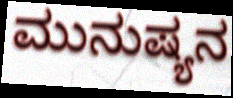
ಮುನುಷ್ಯನ